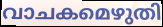
വാചകമെഴുതി